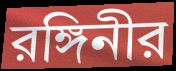
রঙ্গিনীর